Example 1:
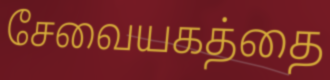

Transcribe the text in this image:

சேவையகத்தை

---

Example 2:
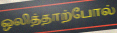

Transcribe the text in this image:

ஒலித்தாற்போல்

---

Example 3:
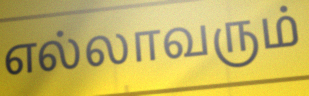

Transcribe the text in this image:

எல்லாவரும்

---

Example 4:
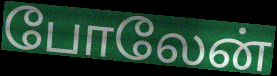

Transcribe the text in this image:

போலேன்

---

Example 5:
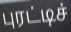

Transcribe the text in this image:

புரட்டிச்